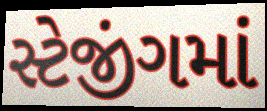
સ્ટેજીંગમાં